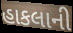
હાકલાની